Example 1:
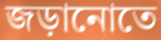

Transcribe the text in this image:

জড়ানোতে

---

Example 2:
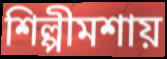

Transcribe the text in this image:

শিল্পীমশায়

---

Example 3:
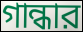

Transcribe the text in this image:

গান্ধার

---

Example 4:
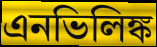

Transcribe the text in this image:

এনভিলিঙ্ক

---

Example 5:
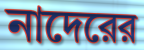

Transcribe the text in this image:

নাদেরের